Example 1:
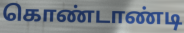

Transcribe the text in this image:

கொண்டாண்டி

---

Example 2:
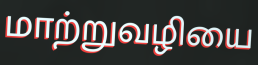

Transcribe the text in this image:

மாற்றுவழியை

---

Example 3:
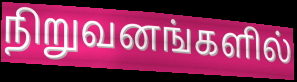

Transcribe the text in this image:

நிறுவனங்களில்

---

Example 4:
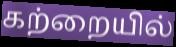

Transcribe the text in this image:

கற்றையில்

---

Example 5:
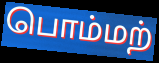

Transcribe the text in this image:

பொம்மற்